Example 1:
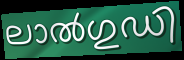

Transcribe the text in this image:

ലാൽഗുഡി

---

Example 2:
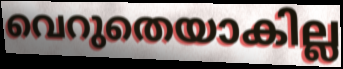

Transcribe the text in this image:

വെറുതെയാകില്ല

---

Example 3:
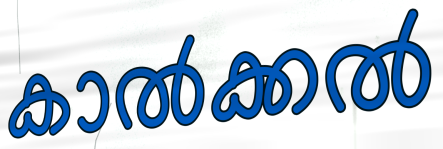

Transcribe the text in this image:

കാൽക്കൽ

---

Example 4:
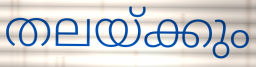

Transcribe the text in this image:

തലയ്ക്കും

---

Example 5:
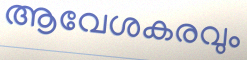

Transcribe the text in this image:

ആവേശകരവും